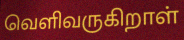
வெளிவருகிறாள்